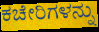
ಕಚೇರಿಗಳನ್ನು